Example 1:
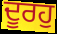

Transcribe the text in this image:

ਦੂਰਹੁ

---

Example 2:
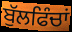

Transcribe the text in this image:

ਬੁੱਲਫਿੰਚਾਂ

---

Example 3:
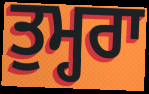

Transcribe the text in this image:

ਤੁਮ੍ਹਰਾ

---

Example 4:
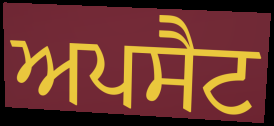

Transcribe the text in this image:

ਅਪਸੈਟ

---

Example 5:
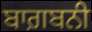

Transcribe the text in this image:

ਬਾਗ਼ਬਨੀ